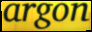
argon